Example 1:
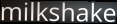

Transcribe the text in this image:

milkshake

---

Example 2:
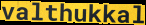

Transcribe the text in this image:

valthukkal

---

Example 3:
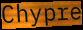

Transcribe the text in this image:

Chypre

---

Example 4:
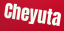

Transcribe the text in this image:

Cheyuta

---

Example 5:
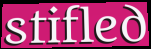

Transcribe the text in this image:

stifled